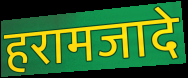
हरामजादे